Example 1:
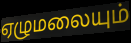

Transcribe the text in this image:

ஏழுமலையும்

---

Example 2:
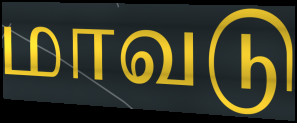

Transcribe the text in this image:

மாவடு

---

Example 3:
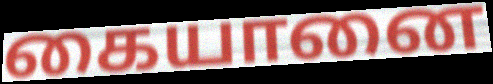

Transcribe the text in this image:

கையானை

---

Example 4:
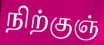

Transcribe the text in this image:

நிற்குஞ்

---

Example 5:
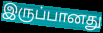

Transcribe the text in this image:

இருப்பானது